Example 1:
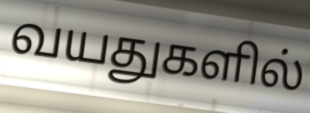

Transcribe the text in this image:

வயதுகளில்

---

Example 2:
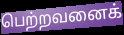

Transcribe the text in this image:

பெற்றவனைக்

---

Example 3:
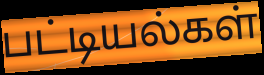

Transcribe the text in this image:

பட்டியல்கள்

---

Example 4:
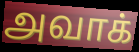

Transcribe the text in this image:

அவாக்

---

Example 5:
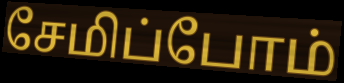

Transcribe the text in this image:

சேமிப்போம்